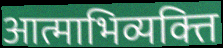
आत्माभिव्यक्ति